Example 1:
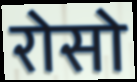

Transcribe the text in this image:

रोसो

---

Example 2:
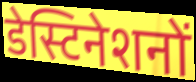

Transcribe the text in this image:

डेस्टिनेशनों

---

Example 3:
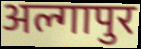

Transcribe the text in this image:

अल्गापुर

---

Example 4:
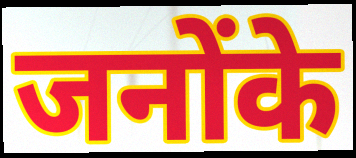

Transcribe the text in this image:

जनोंके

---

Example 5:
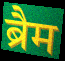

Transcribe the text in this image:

ब्रैम